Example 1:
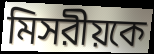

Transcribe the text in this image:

মিসরীয়কে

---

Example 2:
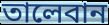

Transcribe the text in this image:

তালেবান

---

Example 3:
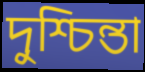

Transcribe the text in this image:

দুশ্চিন্তা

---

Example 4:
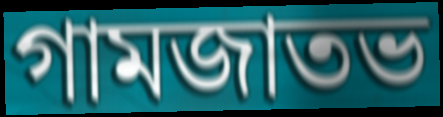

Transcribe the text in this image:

গামজাতভ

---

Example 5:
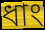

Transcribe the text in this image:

ধাং